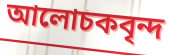
আলোচকবৃন্দ